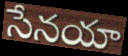
సేనయా